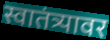
स्वातंत्र्यावर